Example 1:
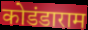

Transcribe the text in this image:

कोडंडाराम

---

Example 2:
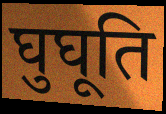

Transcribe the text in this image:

घुघूति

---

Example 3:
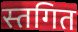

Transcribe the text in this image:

स्तगित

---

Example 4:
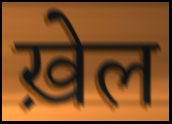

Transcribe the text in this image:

ख़ेल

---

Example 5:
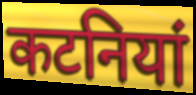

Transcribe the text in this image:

कटनियां